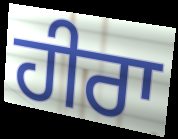
ਹੀਰਾ